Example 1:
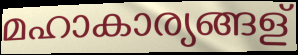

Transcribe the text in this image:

മഹാകാര്യങ്ങള്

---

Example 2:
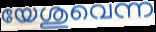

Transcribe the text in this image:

യേശുവെന്ന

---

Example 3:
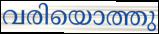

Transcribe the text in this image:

വരിയൊത്തു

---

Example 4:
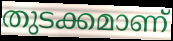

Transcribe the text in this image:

തുടക്കമാണ്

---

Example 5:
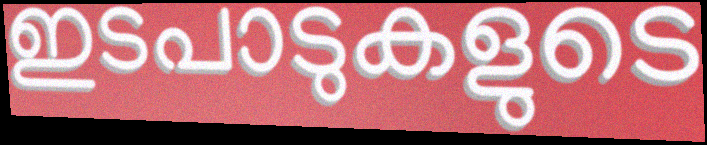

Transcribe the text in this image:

ഇടപാടുകളുടെ